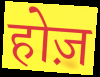
होज़